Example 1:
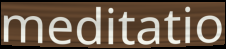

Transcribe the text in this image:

meditatio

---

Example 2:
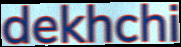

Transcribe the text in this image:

dekhchi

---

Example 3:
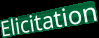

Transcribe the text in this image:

Elicitation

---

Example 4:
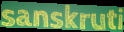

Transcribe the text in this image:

sanskruti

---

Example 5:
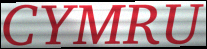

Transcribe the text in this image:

CYMRU